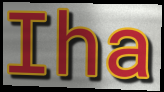
Iha